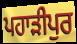
ਪਹਾੜੀਪੁਰ